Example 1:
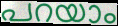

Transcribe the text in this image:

പറയാം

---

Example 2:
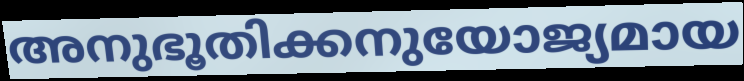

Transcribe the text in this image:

അനുഭൂതിക്കനുയോജ്യമായ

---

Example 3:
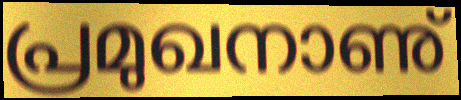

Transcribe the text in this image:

പ്രമുഖനാണു്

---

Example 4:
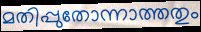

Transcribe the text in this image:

മതിപ്പുതോന്നാത്തതും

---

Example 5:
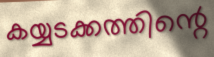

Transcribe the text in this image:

കയ്യടക്കത്തിന്റെ